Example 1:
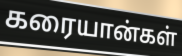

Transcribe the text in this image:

கரையான்கள்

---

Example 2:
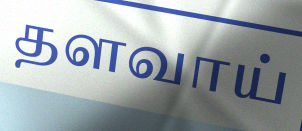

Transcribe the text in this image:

தளவாய்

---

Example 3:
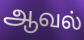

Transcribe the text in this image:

ஆவல்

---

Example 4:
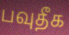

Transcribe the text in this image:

பவுதீக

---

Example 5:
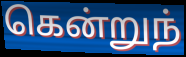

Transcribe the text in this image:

கென்றுந்